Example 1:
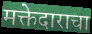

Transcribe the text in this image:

मक्तेदाराचा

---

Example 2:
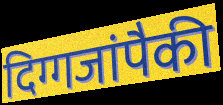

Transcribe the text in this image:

दिग्गजांपैकी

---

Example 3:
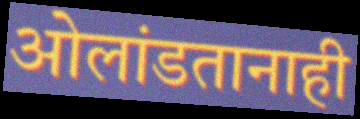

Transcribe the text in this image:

ओलांडतानाही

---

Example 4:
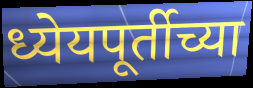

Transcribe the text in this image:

ध्येयपूर्तीच्या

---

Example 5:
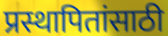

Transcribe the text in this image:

प्रस्थापितांसाठी